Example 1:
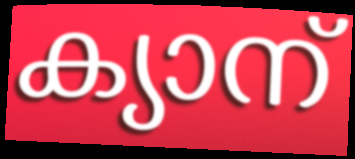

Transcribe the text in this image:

ക്യാന്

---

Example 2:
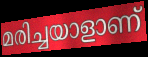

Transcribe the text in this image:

മരിച്ചയാളാണ്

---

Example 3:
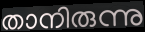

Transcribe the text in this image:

താനിരുന്നു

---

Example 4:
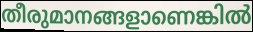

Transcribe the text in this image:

തീരുമാനങ്ങളാണെങ്കിൽ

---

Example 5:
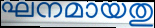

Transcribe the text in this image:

ഘനമായതു